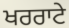
ਖਰਰਾਟੇ